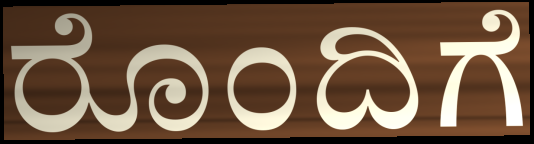
ರೊಂದಿಗೆ